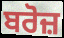
ਬਰੋਜ਼